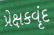
પ્રેક્ષકવૃંદ